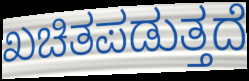
ಖಚಿತಪಡುತ್ತದೆ